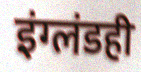
इंग्लंडही